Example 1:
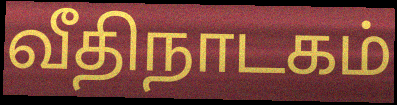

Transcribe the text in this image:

வீதிநாடகம்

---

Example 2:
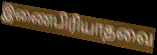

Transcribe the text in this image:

இணைபிரியாதவை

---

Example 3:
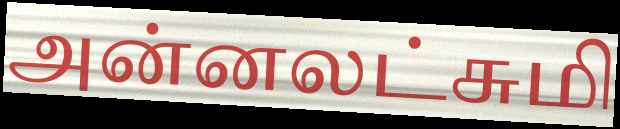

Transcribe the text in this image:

அன்னலட்சுமி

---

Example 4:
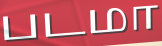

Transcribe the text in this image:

படமா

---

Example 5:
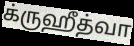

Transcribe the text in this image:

க்ருஹீத்வா